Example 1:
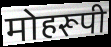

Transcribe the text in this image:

मोहरूपी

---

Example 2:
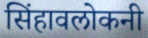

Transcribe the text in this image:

सिंहावलोकनी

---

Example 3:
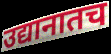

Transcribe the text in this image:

उद्यानातच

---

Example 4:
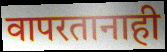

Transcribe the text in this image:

वापरतानाही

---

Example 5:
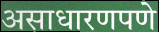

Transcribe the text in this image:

असाधारणपणे